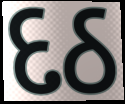
દઠ